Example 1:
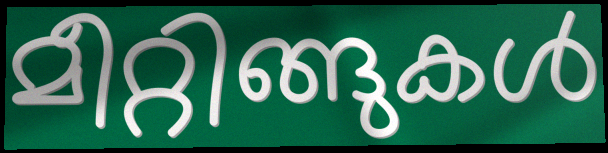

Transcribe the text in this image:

മീറ്റിങ്ങുകൾ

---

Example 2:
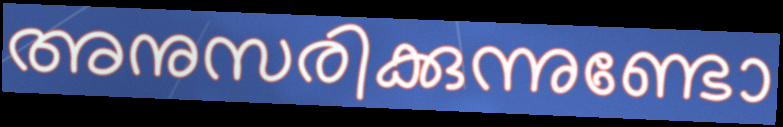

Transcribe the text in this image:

അനുസരിക്കുന്നുണ്ടോ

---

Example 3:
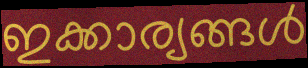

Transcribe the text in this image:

ഇക്കാര്യങ്ങൾ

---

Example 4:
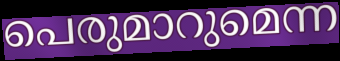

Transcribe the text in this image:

പെരുമാറുമെന്ന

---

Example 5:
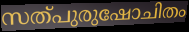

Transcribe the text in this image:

സത്പുരുഷോചിതം